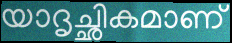
യാദൃച്ഛികമാണ്